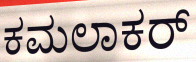
ಕಮಲಾಕರ್